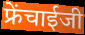
फ्रेंचाईजी